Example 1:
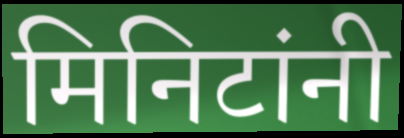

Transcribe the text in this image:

मिनिटांनी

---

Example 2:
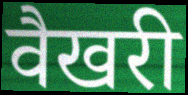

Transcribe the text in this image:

वैखरी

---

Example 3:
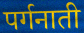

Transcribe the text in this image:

पर्गनाती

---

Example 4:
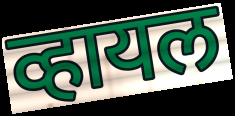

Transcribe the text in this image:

व्हायल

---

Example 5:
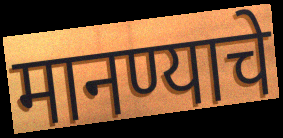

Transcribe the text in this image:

मानण्याचे